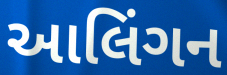
આલિંગન